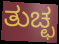
ತುಚ್ಛ